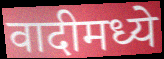
वादीमध्ये